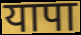
यापा